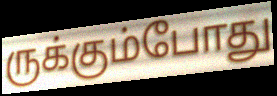
ருக்கும்போது